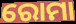
ରୋମା